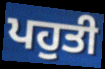
ਪਹੁਤੀ